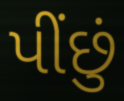
પીંછું